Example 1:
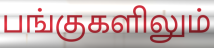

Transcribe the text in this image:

பங்குகளிலும்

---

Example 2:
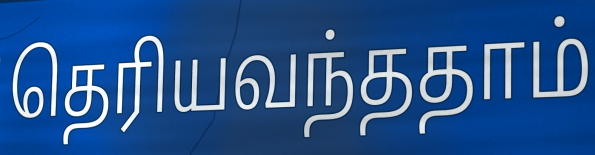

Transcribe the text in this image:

தெரியவந்ததாம்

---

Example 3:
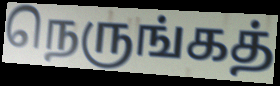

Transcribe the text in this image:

நெருங்கத்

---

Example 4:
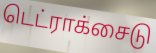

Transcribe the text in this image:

டெட்ராக்சைடு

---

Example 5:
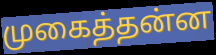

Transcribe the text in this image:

முகைத்தன்ன